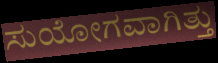
ಸುಯೋಗವಾಗಿತ್ತು